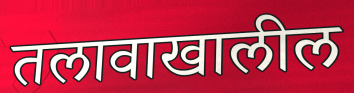
तलावाखालील